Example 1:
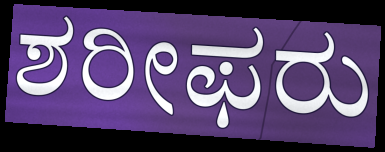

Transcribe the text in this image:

ಶರೀಫರು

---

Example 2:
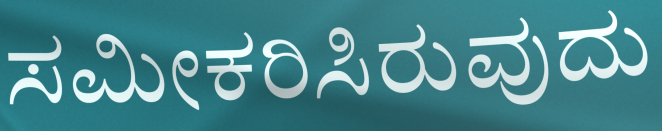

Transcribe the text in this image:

ಸಮೀಕರಿಸಿರುವುದು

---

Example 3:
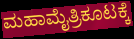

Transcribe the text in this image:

ಮಹಾಮೈತ್ರಿಕೂಟಕ್ಕೆ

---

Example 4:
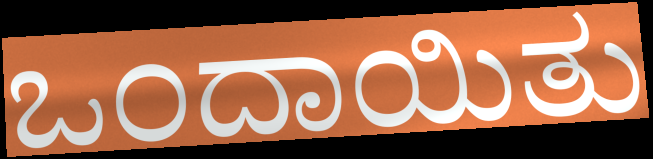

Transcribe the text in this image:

ಒಂದಾಯಿತು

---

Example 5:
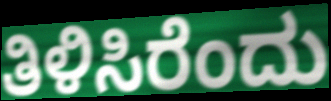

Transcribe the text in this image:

ತಿಳಿಸಿರೆಂದು